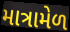
માત્રામેળ